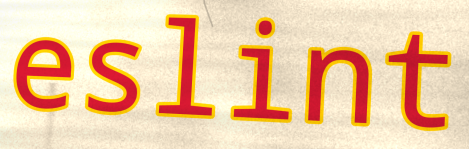
eslint